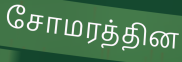
சோமரத்தின